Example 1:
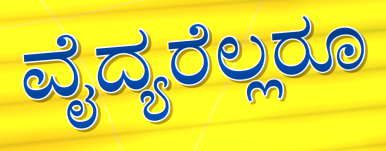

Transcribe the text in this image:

ವೈದ್ಯರೆಲ್ಲರೂ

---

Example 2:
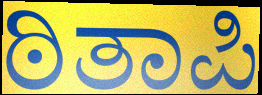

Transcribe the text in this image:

ಠಿತಾಪಿ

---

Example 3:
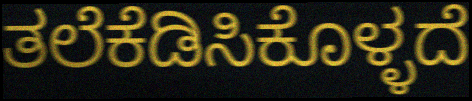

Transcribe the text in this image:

ತಲೆಕೆಡಿಸಿಕೊಳ್ಳದೆ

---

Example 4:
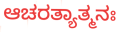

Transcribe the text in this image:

ಆಚರತ್ಯಾತ್ಮನಃ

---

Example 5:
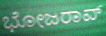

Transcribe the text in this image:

ಭೋಜರಾವ್